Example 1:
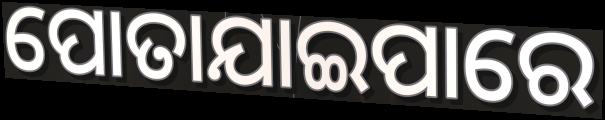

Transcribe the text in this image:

ପୋତାଯାଇପାରେ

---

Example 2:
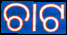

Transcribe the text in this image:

ଚାଟ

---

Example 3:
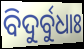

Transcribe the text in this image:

ବିଦୁର୍ବୁଧାଃ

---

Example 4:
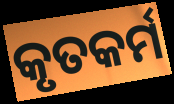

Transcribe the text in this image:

କୃତକର୍ମ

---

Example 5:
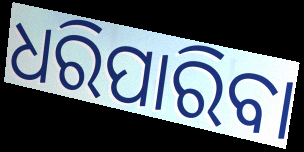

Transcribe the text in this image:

ଧରିପାରିବା